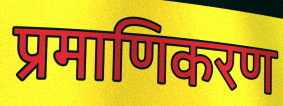
प्रमाणिकरण